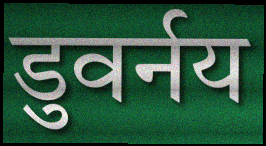
डुवर्नय